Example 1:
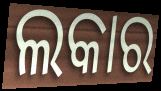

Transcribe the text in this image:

ଲକାର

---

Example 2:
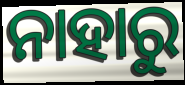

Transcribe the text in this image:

ନାହାରୁ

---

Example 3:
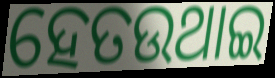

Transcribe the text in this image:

ହେତଉଥାଇ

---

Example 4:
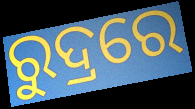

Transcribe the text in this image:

ରୁଦ୍ରରେ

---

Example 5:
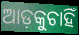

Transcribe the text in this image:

ଆଡ଼କୁଚାହିଁ